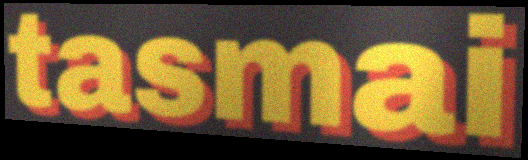
tasmai